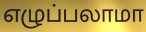
எழுப்பலாமா